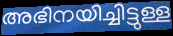
അഭിനയിച്ചിട്ടുള്ള